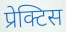
प्रेक्टिस